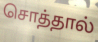
சொத்தால்